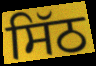
ਸਿੱਠ